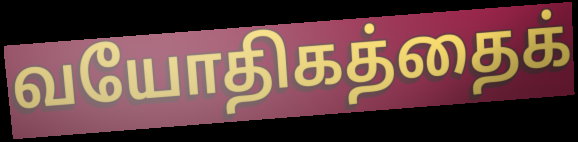
வயோதிகத்தைக்